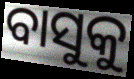
ବାସୁକୁ